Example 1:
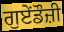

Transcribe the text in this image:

ਗੁਏਂਡੌਜ਼ੀ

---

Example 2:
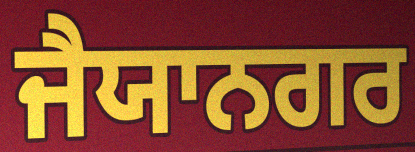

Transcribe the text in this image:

ਜੈਯਾਨਗਰ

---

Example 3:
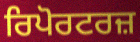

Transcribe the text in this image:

ਰਿਪੋਰਟਰਜ਼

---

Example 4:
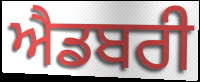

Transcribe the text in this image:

ਐਡਬਰੀ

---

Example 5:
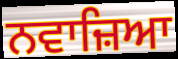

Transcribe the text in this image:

ਨਵਾਜ਼ਿਆ